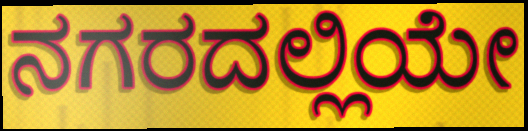
ನಗರದಲ್ಲಿಯೇ